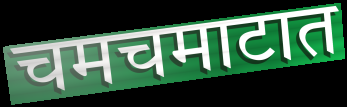
चमचमाटात